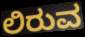
ಲಿರುವ